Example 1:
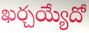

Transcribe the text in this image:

ఖర్చయ్యేదో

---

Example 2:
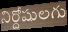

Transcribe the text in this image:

నిర్దోషులగు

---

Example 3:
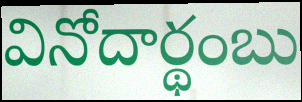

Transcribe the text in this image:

వినోదార్థంబు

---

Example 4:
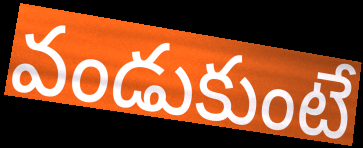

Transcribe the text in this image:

వండుకుంటే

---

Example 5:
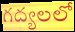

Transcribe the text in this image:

గద్యలలో